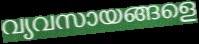
വ്യവസായങ്ങളെ